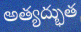
అత్యద్భుత